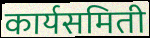
कार्यसमिती